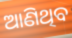
ଆଣିଥିବ